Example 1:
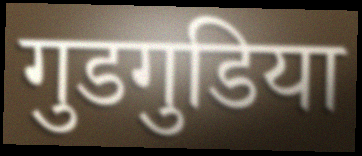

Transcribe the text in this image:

गुडगुडिया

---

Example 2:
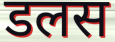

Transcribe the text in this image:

डलस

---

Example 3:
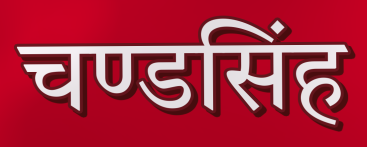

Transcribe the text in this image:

चण्डसिंह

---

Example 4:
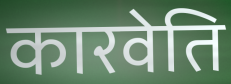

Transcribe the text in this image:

कारवेति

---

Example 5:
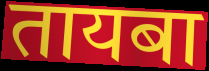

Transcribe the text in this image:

तायबा